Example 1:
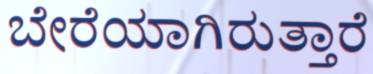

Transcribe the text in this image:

ಬೇರೆಯಾಗಿರುತ್ತಾರೆ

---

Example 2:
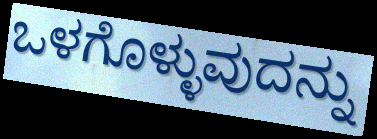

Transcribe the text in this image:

ಒಳಗೊಳ್ಳುವುದನ್ನು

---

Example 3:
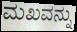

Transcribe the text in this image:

ಮಖವನ್ನು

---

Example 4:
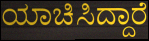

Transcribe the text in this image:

ಯಾಚಿಸಿದ್ದಾರೆ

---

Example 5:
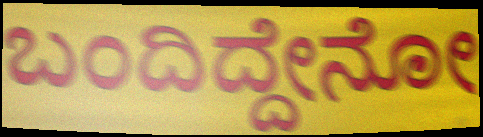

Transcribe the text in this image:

ಬಂದಿದ್ದೇನೋ